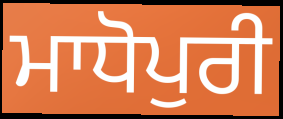
ਮਾਧੋਪੁਰੀ